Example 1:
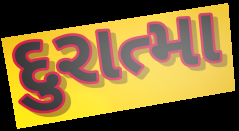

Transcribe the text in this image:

દુરાત્મા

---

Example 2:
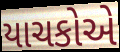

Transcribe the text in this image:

યાચકોએ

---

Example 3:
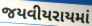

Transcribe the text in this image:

જયવીયરાયમાં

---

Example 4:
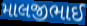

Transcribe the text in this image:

માલજીભાઈ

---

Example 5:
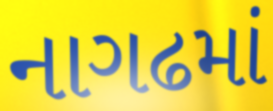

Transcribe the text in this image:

નાગઢમાં